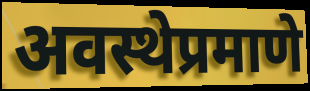
अवस्थेप्रमाणे